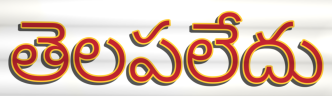
తెలపలేదు